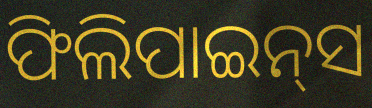
ଫିଲିପାଇନ୍‍ସ